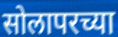
सोलापरच्या